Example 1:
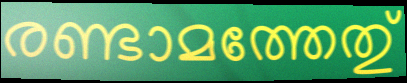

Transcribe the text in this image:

രണ്ടാമത്തേതു്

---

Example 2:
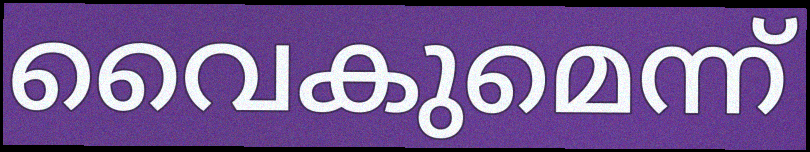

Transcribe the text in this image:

വൈകുമെന്ന്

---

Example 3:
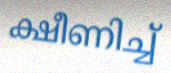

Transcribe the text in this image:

ക്ഷീണിച്ച്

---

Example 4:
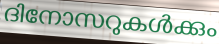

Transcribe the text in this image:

ദിനോസറുകൾക്കും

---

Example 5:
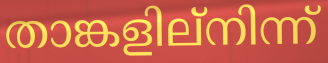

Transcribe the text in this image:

താങ്കളില്നിന്ന്